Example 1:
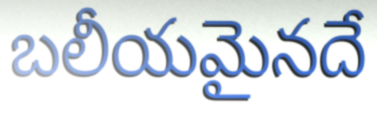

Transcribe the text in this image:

బలీయమైనదే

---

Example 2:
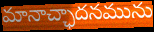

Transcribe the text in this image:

మానాచ్ఛాదనమును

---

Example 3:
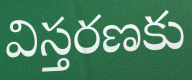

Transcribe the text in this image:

విస్తరణకు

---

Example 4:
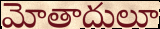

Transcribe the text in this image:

మోతాదులూ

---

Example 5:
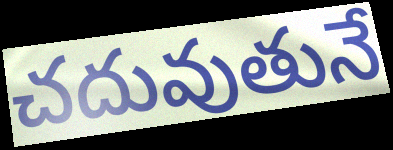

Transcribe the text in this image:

చదువుతునే